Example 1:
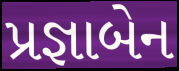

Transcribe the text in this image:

પ્રજ્ઞાબેન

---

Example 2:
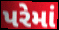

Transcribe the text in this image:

પરેમાં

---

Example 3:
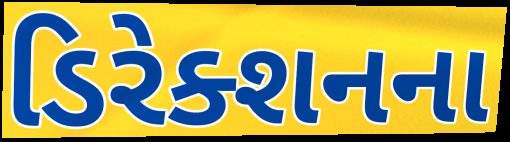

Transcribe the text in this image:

ડિરેક્શનના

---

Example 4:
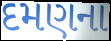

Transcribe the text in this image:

દમણના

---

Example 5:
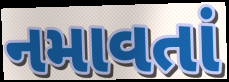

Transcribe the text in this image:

નમાવતાં